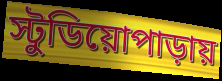
স্টুডিয়োপাড়ায়